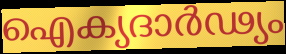
ഐക്യദാർഢ്യം